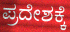
ಪ್ರದೇಶಕ್ಕೆ